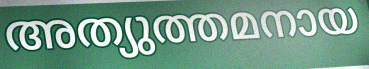
അത്യുത്തമനായ